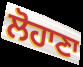
ਲੋਹਾਣਾ